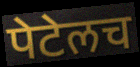
पेटेलच